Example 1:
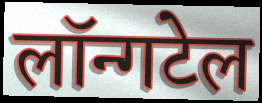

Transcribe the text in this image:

लॉन्गटेल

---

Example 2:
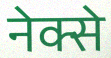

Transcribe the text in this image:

नेक्से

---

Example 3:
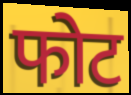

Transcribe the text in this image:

फोट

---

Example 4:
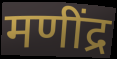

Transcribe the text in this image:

मणींद्र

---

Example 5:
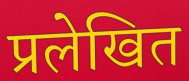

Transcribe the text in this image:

प्रलेखित